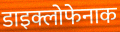
डाइक्लोफेनाक